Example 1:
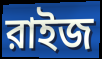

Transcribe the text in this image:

রাইজ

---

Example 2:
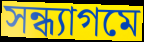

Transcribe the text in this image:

সন্ধ্যাগমে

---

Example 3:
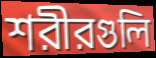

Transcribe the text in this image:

শরীরগুলি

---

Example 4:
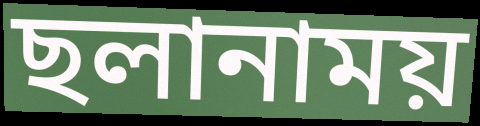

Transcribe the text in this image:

ছলানাময়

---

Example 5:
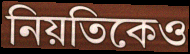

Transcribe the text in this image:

নিয়তিকেও